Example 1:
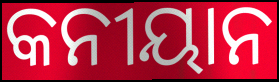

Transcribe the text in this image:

କନୀୟାନ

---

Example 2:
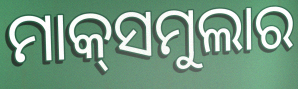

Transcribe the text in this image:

ମାକ୍‌ସମୁଲାର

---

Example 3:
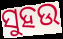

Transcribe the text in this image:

ସୁହଉ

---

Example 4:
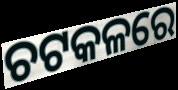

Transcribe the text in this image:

ଚଟକଳରେ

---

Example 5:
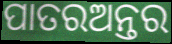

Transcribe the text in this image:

ପାତରଅନ୍ତର